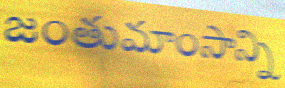
జంతుమాంసాన్ని